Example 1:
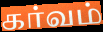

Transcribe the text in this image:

கர்வம்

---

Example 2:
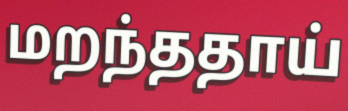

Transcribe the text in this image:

மறந்ததாய்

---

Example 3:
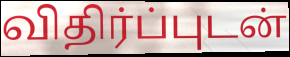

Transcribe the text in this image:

விதிர்ப்புடன்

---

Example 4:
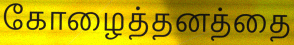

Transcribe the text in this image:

கோழைத்தனத்தை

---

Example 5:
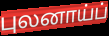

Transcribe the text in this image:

புலனாய்ப்